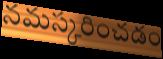
నమస్కరించడం